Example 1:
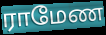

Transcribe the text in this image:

ராமேண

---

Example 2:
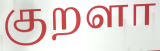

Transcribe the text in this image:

குறளா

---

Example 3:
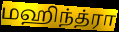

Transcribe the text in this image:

மஹிந்த்ரா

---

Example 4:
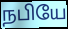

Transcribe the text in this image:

நபியே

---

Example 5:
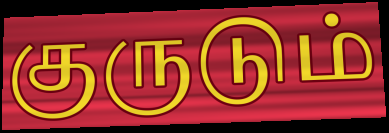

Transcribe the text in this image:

குருடும்